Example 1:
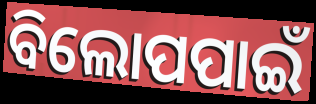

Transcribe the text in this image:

ବିଲୋପପାଇଁ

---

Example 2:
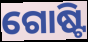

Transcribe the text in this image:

ଗୋଷ୍ଟି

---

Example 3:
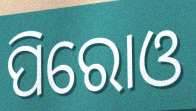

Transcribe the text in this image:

ପିରୋଓ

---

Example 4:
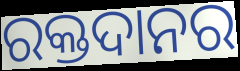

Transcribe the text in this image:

ରକ୍ତଦାନର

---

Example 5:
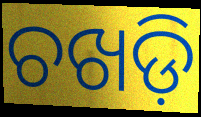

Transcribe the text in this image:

ଚଖଡ଼ି